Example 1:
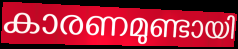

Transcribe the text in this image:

കാരണമുണ്ടായി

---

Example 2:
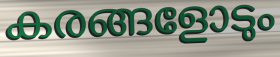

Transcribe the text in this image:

കരങ്ങളോടും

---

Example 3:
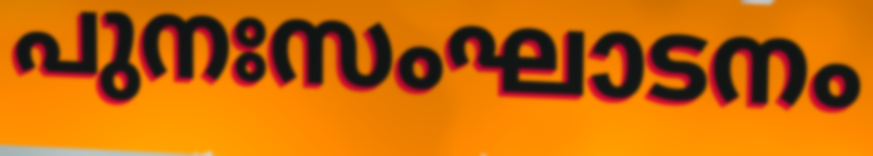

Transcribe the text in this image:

പുനഃസംഘാടനം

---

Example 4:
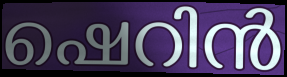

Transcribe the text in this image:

ഷെറിൻ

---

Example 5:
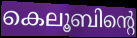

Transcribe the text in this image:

കെലൂബിന്റെ